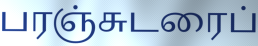
பரஞ்சுடரைப்